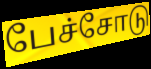
பேச்சோடு